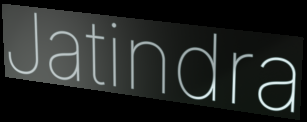
Jatindra